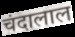
चंदालाल